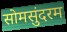
सोमसुंदरम